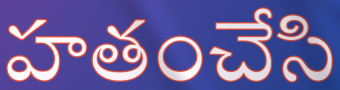
హతంచేసి